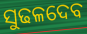
ସୁଢଳଦେବ